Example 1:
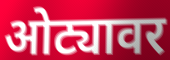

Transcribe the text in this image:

ओट्यावर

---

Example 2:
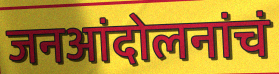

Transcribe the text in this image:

जनआंदोलनांचं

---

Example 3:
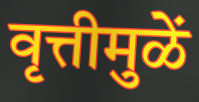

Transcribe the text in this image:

वृत्तीमुळें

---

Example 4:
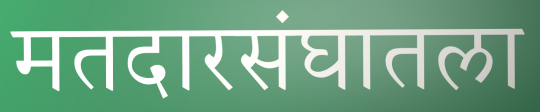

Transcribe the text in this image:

मतदारसंघातला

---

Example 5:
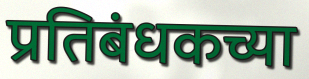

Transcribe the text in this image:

प्रतिबंधकच्या